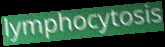
lymphocytosis